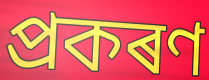
প্ৰকৰণ